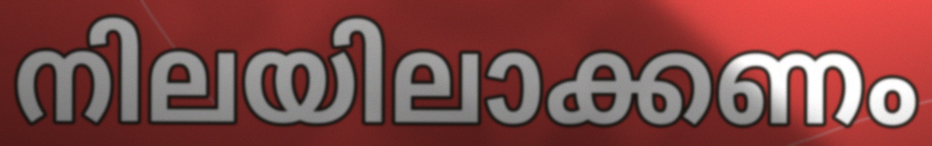
നിലയിലാക്കണം